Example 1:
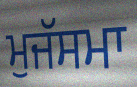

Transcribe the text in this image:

ਮੁਜੱਸਮਾ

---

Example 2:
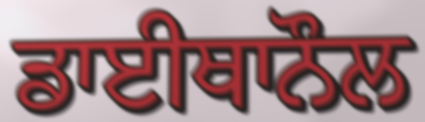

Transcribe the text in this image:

ਡਾਈਥਾਨੌਲ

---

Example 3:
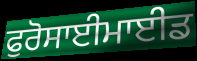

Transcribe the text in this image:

ਫੁਰੋਸਾਈਮਾਈਡ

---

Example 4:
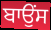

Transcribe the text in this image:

ਬਾਉਂਸ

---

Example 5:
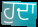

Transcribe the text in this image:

ਹੁਦਾ